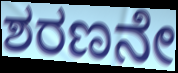
ಶರಣನೇ